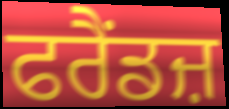
ਫਰੈਂਡਜ਼